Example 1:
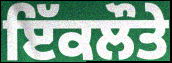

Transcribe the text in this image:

ਇੱਕਲੌਤੇ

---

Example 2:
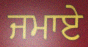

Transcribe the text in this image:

ਜਮਾਏ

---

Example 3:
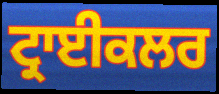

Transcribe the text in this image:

ਟ੍ਰਾਈਕਲਰ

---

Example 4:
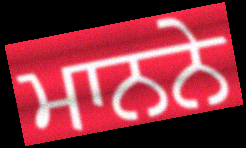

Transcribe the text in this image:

ਮਾਨਨੇ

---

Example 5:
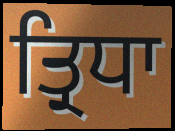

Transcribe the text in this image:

ਤ੍ਰਿਧਾ